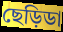
ছেড়িডা